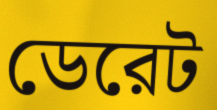
ডেরেট